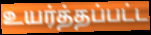
உயர்த்தப்பட்ட